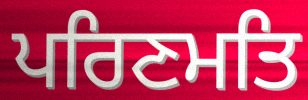
ਪਰਿਣਮਤਿ